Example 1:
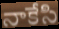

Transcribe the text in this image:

నాకేసి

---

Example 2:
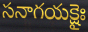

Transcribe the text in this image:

సనాగయక్షైః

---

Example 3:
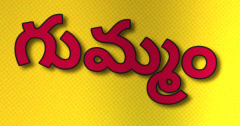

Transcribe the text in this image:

గుమ్మం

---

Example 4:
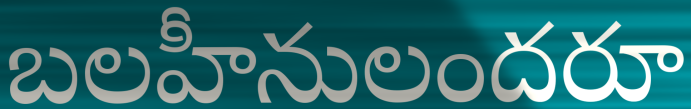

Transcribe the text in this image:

బలహీనులందరూ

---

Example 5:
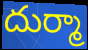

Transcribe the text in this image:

దుర్మా